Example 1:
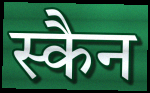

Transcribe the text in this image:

स्‍कैन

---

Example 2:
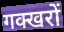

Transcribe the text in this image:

गक्खरों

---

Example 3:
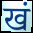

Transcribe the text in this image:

खं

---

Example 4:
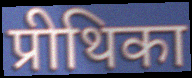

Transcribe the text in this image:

प्रीथिका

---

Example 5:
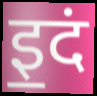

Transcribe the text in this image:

इ॒दं